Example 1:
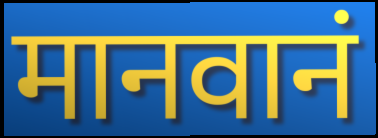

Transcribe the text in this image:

मानवानं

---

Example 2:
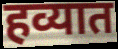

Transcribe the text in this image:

हव्यात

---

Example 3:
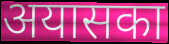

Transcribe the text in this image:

अयासका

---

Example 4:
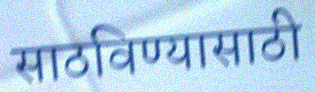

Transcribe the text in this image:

साठविण्यासाठी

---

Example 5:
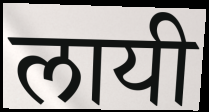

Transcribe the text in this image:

लायी